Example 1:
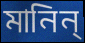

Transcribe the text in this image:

মানিন্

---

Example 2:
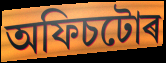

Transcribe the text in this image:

অফিচটোৰ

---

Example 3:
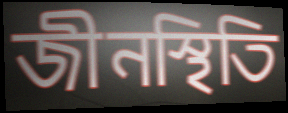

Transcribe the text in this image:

জীনস্থিতি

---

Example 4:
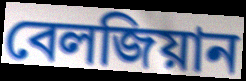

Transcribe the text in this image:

বেলজিয়ান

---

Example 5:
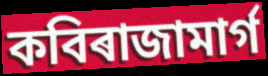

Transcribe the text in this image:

কবিৰাজামাৰ্গ